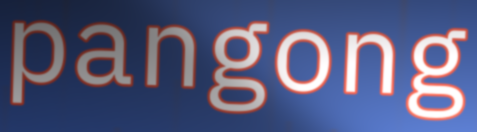
pangong